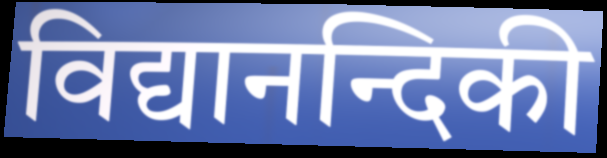
विद्यानन्दिकी